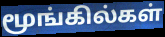
மூங்கில்கள்